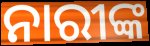
ନାରୀଙ୍କ